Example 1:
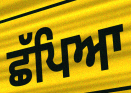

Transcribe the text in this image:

ਛੱਪਿਆ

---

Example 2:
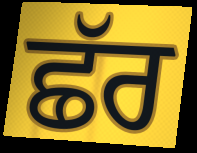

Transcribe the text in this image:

ਛੱਰ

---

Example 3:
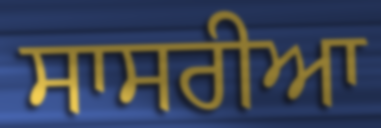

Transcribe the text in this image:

ਸਾਸਰੀਆ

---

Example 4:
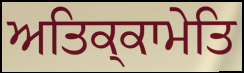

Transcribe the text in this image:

ਅਤਿਕ੍ਕਾਮੇਤਿ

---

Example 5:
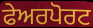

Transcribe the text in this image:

ਫੇਅਰਪੋਰਟ